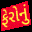
ફેરોનું